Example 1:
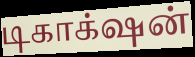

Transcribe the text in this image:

டிகாக்‌ஷன்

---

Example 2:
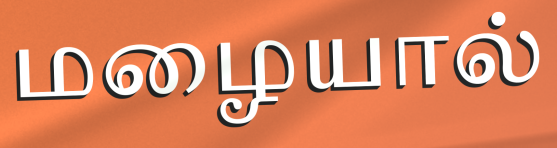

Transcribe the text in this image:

மழையால்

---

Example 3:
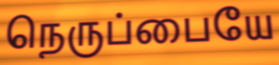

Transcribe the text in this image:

நெருப்பையே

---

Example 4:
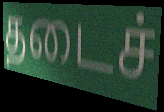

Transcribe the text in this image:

தடைச்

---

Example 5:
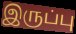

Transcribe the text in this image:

இருப்பு